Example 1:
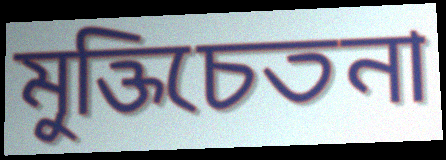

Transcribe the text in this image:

মুক্তিচেতনা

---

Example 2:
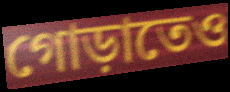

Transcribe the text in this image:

গোড়াতেও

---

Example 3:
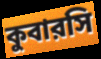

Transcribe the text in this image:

কুবারসি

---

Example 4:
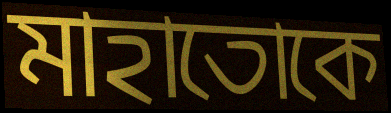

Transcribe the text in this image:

মাহাতোকে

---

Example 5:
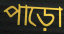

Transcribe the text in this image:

পাড়ো